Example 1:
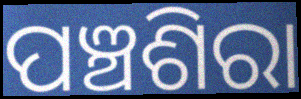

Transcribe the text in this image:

ପଞ୍ଚଶିରା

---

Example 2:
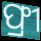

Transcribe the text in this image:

ଫ୍ରୀ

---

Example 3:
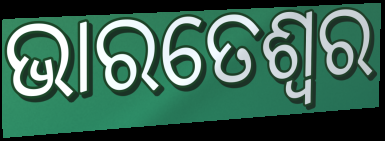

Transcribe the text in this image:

ଭାରତେଶ୍ୱର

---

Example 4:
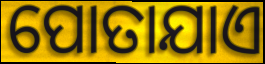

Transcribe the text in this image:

ପୋତାଯାଏ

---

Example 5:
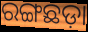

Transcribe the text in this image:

ରଙ୍ଗଛଡ଼ା